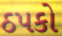
ઠપકો